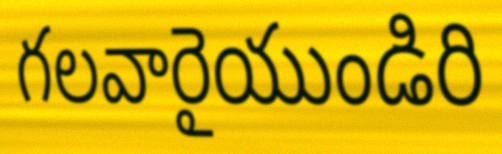
గలవారైయుండిరి